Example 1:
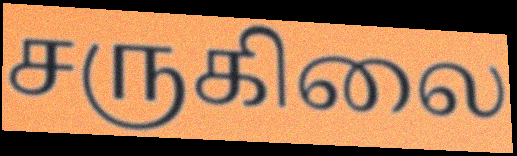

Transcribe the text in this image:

சருகிலை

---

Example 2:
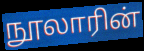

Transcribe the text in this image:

நூலாரின்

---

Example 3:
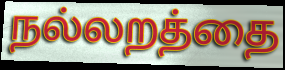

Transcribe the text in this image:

நல்லறத்தை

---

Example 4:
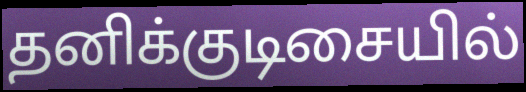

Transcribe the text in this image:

தனிக்குடிசையில்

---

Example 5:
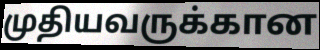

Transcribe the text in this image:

முதியவருக்கான